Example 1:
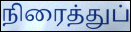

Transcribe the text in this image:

நிரைத்துப்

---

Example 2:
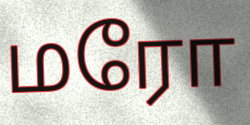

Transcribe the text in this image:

மரோ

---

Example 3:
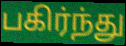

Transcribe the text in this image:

பகிர்ந்து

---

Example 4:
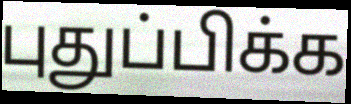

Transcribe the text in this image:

புதுப்பிக்க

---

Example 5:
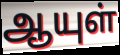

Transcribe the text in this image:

ஆயுள்